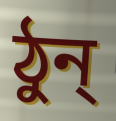
ঠুন্